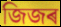
জিজৰ